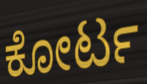
ಕೋರ್ಟ